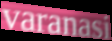
varanasi